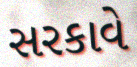
સરકાવે